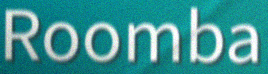
Roomba